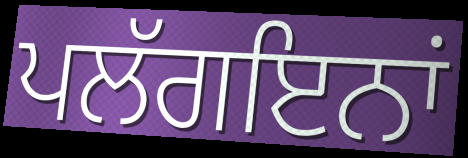
ਪਲੱਗਇਨਾਂ